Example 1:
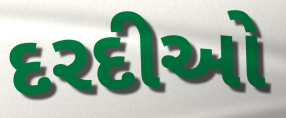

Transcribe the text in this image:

દરદીઓ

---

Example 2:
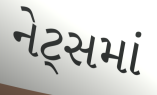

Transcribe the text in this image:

નેટ્સમાં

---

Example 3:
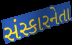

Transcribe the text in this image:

સંસ્કારનેતા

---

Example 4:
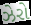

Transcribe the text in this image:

ઝેરો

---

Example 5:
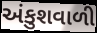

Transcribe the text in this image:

અંકુશવાળી